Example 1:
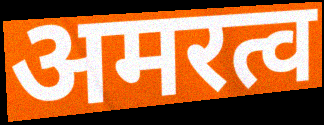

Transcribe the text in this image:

अमरत्व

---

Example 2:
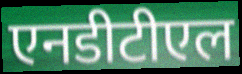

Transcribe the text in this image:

एनडीटीएल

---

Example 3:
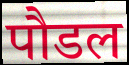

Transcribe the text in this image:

पौडल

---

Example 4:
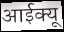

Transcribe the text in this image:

आईक्यू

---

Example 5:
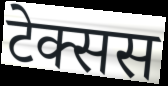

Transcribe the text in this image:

टेक्सस